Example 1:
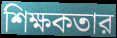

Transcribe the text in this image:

শিক্ষকতার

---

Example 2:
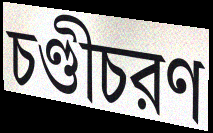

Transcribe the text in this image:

চণ্ডীচরণ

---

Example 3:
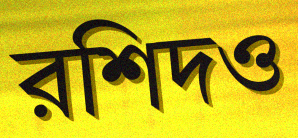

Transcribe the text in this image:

রশিদও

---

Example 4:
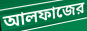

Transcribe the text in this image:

আলফাজের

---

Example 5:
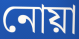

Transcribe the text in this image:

নোয়া